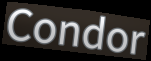
Condor